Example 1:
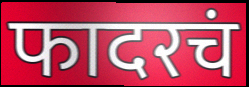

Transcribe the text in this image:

फादरचं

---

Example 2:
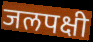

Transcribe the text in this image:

जलपक्षी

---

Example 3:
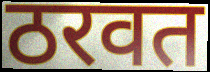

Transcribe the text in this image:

ठरवत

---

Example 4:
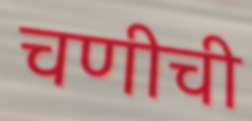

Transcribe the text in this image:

चणीची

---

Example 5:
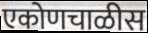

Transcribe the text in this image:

एकोणचाळीस